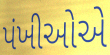
પંખીઓએ